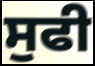
ਸੁਫੀ